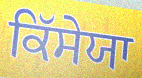
ਕਿੱਸੇਯਾ